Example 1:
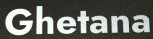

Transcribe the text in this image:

Ghetana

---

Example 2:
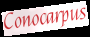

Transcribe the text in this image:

Conocarpus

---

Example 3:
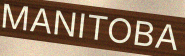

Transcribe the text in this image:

MANITOBA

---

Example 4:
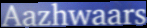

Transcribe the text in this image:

Aazhwaars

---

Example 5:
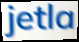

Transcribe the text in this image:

jetla